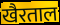
खैरताल